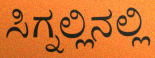
ಸಿಗ್ನಲ್ಲಿನಲ್ಲಿ